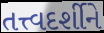
તત્ત્વદર્શીને